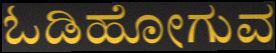
ಓಡಿಹೋಗುವ